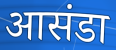
आसंडा